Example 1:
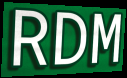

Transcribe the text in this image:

RDM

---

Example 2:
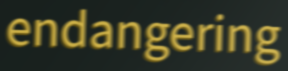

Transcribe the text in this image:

endangering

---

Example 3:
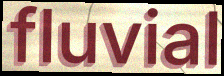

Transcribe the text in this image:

fluvial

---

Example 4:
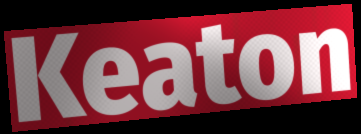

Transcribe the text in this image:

Keaton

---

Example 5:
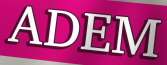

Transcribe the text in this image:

ADEM